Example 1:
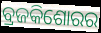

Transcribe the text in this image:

ବ୍ରଜକିଶୋରର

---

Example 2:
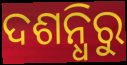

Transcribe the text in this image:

ଦଶନ୍ଧିରୁ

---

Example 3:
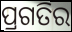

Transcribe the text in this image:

ପ୍ରଗତିର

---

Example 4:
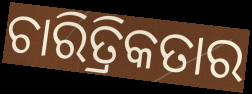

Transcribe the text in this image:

ଚାରିତ୍ରିକତାର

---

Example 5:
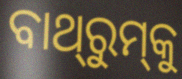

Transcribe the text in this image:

ବାଥ୍‌ରୁମ୍‌କୁ